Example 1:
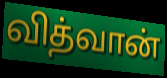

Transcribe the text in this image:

வித்வான்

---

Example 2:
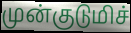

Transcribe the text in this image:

முன்குடுமிச்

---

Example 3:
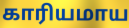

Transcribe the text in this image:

காரியமாய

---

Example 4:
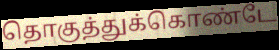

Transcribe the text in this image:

தொகுத்துக்கொண்டே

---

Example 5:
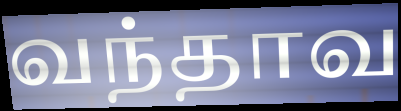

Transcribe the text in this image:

வந்தாவ